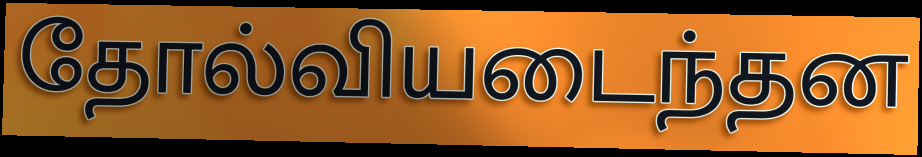
தோல்வியடைந்தன